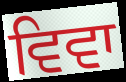
ਵਿਵਾ